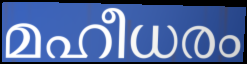
മഹീധരം